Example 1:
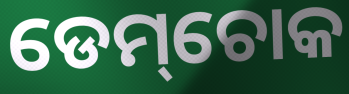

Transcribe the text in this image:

ଡେମ୍‌ଚୋକ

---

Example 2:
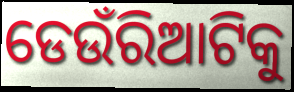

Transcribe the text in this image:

ଡେଉଁରିଆଟିକୁ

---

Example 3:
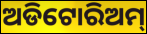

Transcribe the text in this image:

ଅଡିଟୋରିଅମ୍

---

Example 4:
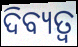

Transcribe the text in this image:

ଦିବ୍ୟତ୍ବ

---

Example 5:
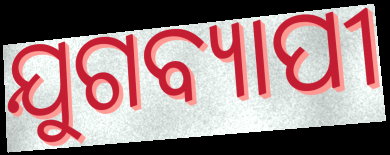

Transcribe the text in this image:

ଯୁଗବ୍ୟାପୀ